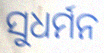
ସୁଧର୍ମନ